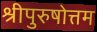
श्रीपुरुषोत्तम